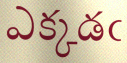
ఎక్కడఁ